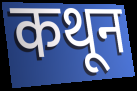
कथून